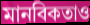
মানবিকতাও